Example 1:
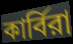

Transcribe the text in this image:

কার্বিরা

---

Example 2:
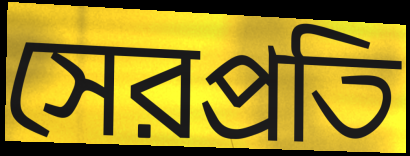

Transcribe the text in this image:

সেরপ্রতি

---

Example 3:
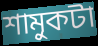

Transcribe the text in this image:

শামুকটা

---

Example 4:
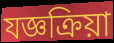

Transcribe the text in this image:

যজ্ঞক্রিয়া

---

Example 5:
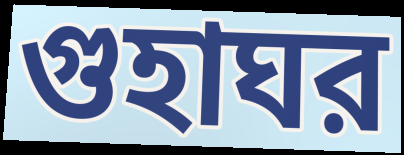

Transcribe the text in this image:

গুহাঘর